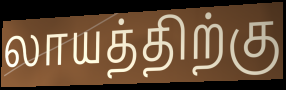
லாயத்திற்கு